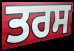
ਤਰਸ